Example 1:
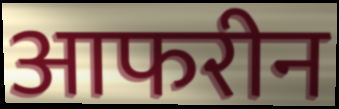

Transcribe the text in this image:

आफरीन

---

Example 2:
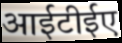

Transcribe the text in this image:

आईटीईए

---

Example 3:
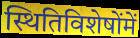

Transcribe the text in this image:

स्थितिविशेषोंमें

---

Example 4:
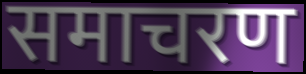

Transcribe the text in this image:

समाचरण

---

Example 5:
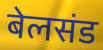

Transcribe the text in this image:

बेलसंड